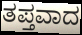
ತಪ್ತವಾದ